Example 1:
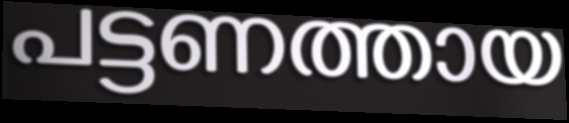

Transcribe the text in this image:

പട്ടണത്തായ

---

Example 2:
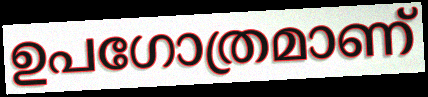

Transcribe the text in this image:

ഉപഗോത്രമാണ്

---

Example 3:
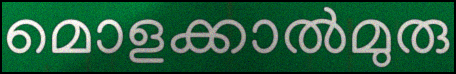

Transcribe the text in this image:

മൊളക്കാൽമുരു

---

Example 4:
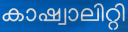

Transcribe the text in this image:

കാഷ്വാലിറ്റി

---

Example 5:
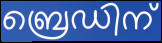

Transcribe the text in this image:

ബ്രെഡിന്